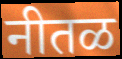
नीतळ